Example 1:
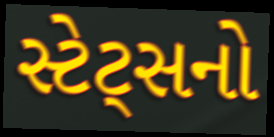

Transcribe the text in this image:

સ્ટેટ્સનો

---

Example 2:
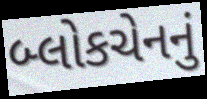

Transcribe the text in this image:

બ્લોકચેનનું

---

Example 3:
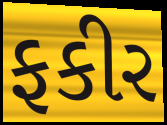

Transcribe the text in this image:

ફકીર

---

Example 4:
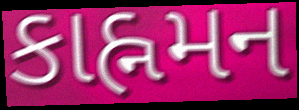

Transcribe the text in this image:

કાહ્નમન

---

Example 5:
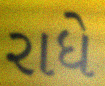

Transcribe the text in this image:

રાધે